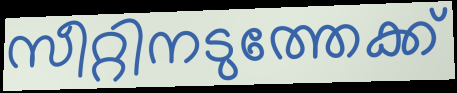
സീറ്റിനടുത്തേക്ക്